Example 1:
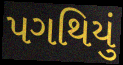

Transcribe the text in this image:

પગથિયું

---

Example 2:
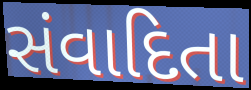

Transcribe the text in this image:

સંવાદિતા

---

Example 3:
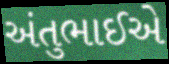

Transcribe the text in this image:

અંતુભાઈએ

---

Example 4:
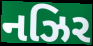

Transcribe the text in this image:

નઝિર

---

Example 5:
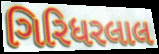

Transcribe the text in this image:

ગિરિધરલાલ